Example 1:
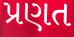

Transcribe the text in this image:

પ્રણત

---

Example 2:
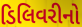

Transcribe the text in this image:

ડિલિવરીનો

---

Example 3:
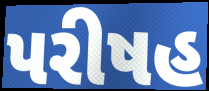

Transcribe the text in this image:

પરીષહ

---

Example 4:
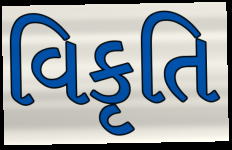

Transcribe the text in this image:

વિકૃતિ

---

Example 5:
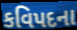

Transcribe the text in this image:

કવિપદના